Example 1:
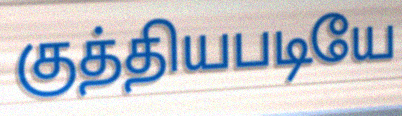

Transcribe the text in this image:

குத்தியபடியே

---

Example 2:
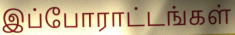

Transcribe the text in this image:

இப்போராட்டங்கள்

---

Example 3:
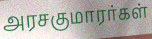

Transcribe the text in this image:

அரசகுமாரர்கள்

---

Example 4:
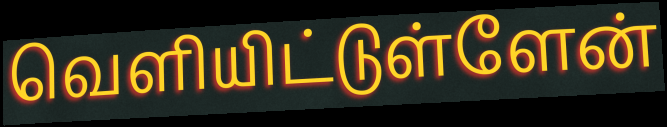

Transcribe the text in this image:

வெளியிட்டுள்ளேன்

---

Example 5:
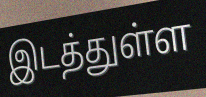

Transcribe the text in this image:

இடத்துள்ள